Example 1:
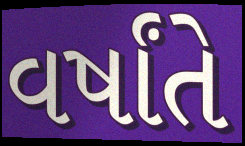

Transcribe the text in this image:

વર્ષાંતે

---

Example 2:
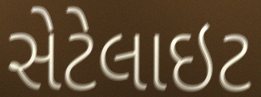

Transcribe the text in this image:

સેટેલાઇટ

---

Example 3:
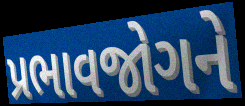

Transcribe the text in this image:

પ્રભાવજોગને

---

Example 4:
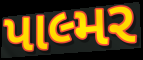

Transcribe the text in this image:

પાલ્મર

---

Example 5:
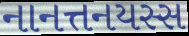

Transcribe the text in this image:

નાનત્તનયસ્સ